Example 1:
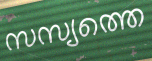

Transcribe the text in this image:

സസ്യത്തെ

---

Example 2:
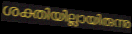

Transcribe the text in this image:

ശക്തിയില്ലായിരുന്നു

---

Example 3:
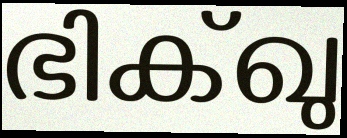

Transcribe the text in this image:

ഭിക്ഖു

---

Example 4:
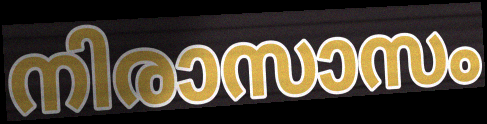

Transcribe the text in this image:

നിരാസാസം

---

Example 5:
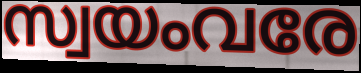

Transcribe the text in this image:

സ്വയംവരേ